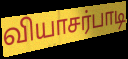
வியாசர்பாடி